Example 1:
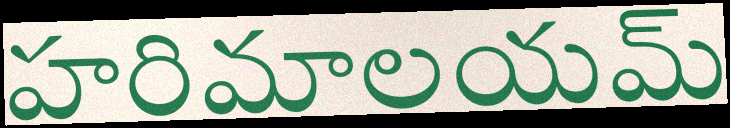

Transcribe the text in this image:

హరిమాలయమ్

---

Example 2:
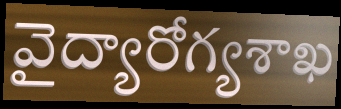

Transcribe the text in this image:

వైద్యారోగ్యశాఖ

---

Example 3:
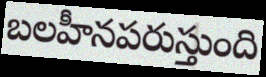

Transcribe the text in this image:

బలహీనపరుస్తుంది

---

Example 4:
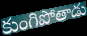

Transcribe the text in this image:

కుంగిపోతాడు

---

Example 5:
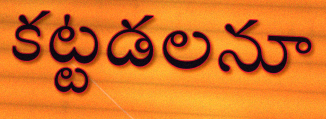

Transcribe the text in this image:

కట్టడలనూ